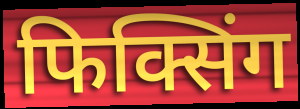
फिक्सिंग